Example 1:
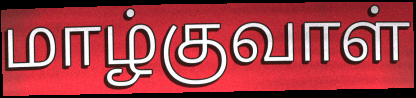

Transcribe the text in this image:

மாழ்குவாள்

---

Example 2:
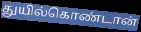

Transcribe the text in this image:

துயில்கொண்டான்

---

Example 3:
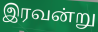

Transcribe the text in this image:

இரவன்று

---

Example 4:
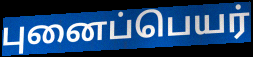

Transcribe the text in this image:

புனைப்பெயர்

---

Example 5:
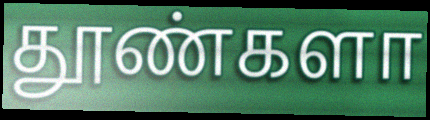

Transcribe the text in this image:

தூண்களா